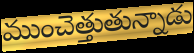
ముంచెత్తుతున్నాడు